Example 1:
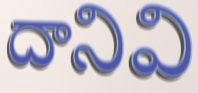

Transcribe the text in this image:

దానివి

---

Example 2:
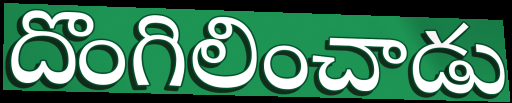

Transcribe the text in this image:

దొంగిలించాడు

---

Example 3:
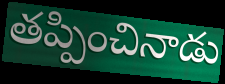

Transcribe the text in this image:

తప్పించినాడు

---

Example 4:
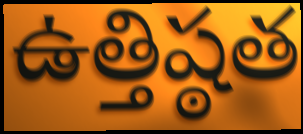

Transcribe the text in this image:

ఉత్తిష్ఠత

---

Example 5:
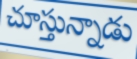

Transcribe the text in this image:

చూస్తున్నాడు